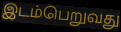
இடம்பெறுவது